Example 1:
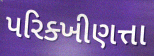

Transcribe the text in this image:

પરિક્ખીણત્તા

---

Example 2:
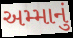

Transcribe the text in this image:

અમ્માનું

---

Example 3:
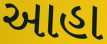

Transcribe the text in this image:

આહા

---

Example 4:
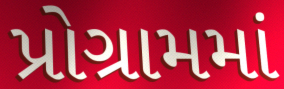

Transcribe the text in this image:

પ્રોગ્રામમાં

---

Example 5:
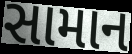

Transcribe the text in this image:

સામાન